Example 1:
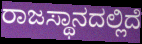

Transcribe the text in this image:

ರಾಜಸ್ಥಾನದಲ್ಲಿದೆ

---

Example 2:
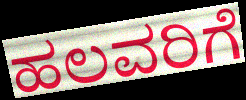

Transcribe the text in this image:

ಹಲವರಿಗೆ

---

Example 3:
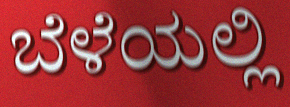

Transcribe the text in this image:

ಬೆಳೆಯಲ್ಲಿ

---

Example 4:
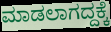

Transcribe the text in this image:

ಮಾಡಲಾಗದ್ದಕ್ಕೆ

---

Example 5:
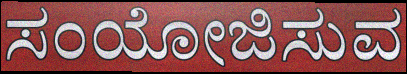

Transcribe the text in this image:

ಸಂಯೋಜಿಸುವ